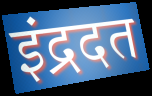
इंद्रदत